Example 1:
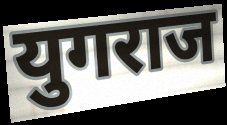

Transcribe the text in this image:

युगराज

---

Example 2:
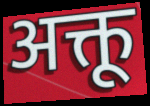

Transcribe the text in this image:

अक्तू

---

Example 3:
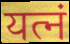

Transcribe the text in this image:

यत्नं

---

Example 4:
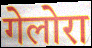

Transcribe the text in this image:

गेलोरा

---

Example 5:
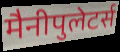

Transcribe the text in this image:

मैनीपुलेटर्स